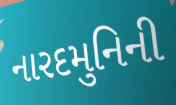
નારદમુનિની